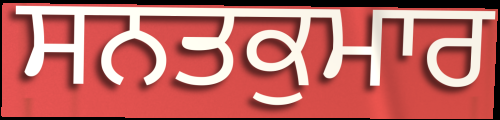
ਸਨਤਕੁਮਾਰ